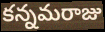
కన్నమరాజు